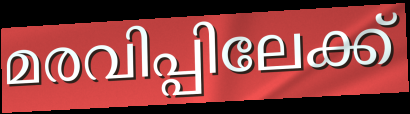
മരവിപ്പിലേക്ക്